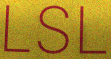
LSL